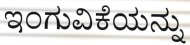
ಇಂಗುವಿಕೆಯನ್ನು